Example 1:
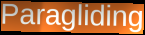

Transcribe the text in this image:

Paragliding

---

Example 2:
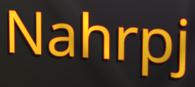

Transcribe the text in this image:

Nahrpj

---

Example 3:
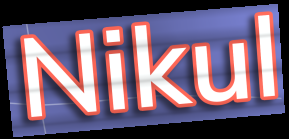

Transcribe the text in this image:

Nikul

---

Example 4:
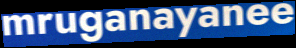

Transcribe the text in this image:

mruganayanee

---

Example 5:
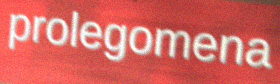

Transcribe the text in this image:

prolegomena